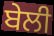
ਬੇਲੀ